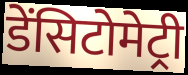
डेंसिटोमेट्री